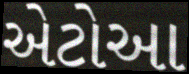
એટોઆ